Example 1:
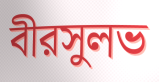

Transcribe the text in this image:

বীরসুলভ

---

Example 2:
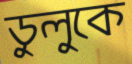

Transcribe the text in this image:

ডুলুকে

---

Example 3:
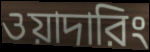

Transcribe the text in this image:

ওয়াদারিং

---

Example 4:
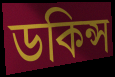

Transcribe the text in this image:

ডকিন্স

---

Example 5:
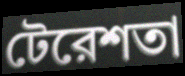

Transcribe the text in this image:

টেরেশতা